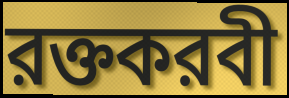
রক্তকরবী